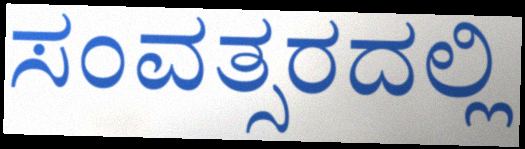
ಸಂವತ್ಸರದಲ್ಲಿ